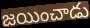
జయించాడు